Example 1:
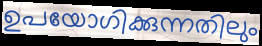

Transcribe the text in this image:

ഉപയോഗിക്കുന്നതിലും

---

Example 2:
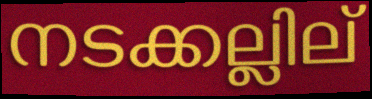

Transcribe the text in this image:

നടക്കല്ലില്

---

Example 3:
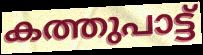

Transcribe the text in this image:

കത്തുപാട്ട്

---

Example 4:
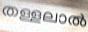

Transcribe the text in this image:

തള്ളലാൽ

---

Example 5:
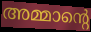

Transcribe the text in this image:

അമ്മാന്റെ